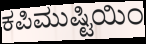
ಕಪಿಮುಷ್ಟಿಯಿಂ